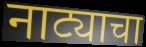
नाट्याचा